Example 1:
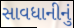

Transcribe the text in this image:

સાવધાનીનું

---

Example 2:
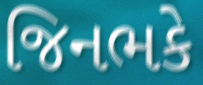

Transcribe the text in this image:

જિનભકે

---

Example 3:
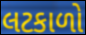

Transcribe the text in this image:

લટકાળો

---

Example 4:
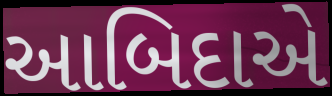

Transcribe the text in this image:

આબિદાએ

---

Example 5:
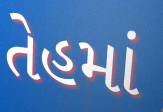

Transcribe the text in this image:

તેહમાં